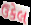
ઉકેલ